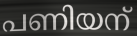
പണിയന്